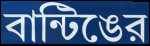
বান্টিঙের